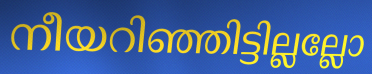
നീയറിഞ്ഞിട്ടില്ലല്ലോ